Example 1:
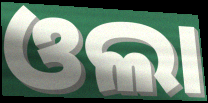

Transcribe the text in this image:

ଓଲା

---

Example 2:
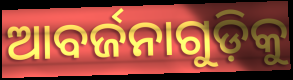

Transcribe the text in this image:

ଆବର୍ଜନାଗୁଡ଼ିକୁ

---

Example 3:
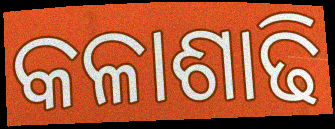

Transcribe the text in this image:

କଳାଶାଢି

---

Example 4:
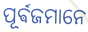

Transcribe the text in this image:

ପୂର୍ଵଜମାନେ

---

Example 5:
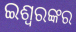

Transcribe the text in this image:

ଇଶ୍ୱରଙ୍କର